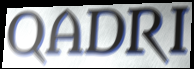
QADRI